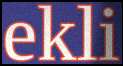
ekli